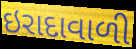
ઇરાદાવાળી